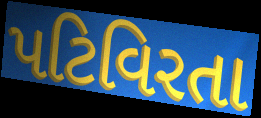
પટિવિરતા